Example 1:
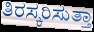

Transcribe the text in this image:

ತಿರಸ್ಕರಿಸುತ್ತಾ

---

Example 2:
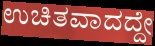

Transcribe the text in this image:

ಉಚಿತವಾದದ್ದೇ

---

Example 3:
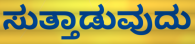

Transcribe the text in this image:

ಸುತ್ತಾಡುವುದು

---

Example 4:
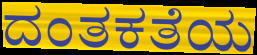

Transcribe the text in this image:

ದಂತಕತೆಯ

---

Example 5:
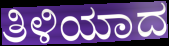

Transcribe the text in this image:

ತಿಳಿಯಾದ